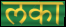
लका